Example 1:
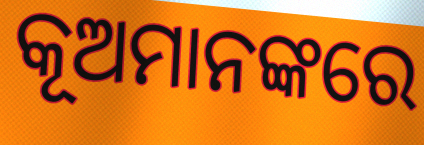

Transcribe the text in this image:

କୂଅମାନଙ୍କରେ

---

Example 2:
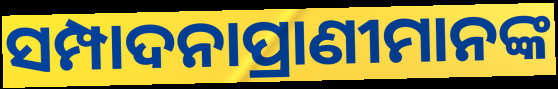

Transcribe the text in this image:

ସମ୍ପାଦନାପ୍ରାଣୀମାନଙ୍କ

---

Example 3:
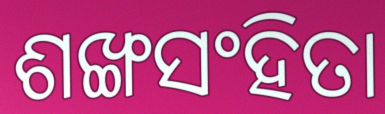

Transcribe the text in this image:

ଶଙ୍ଖସଂହିତା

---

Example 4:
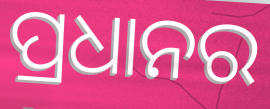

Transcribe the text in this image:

ପ୍ରଧାନର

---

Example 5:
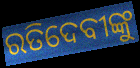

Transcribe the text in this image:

ରତିଦେବୀଙ୍କୁ